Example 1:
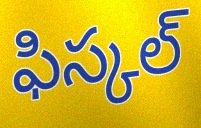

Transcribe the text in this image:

ఫిస్కల్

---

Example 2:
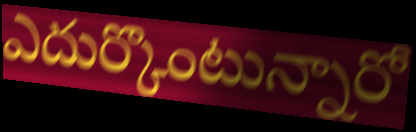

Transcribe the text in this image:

ఎదుర్కొంటున్నారో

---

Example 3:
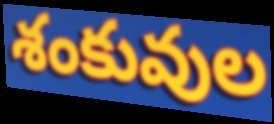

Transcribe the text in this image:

శంకువుల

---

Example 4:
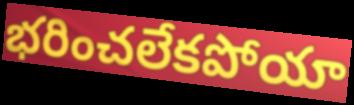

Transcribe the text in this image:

భరించలేకపోయా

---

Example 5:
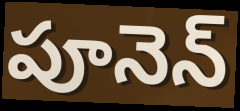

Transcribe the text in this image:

పూనెన్